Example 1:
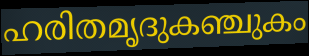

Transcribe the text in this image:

ഹരിതമൃദുകഞ്ചുകം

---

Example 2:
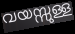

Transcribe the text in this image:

വയസ്സുള്ള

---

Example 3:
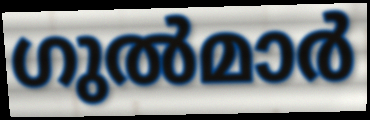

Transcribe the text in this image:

ഗുൽമാർ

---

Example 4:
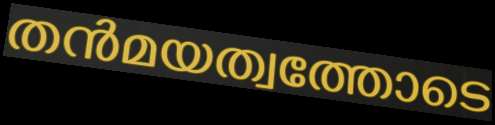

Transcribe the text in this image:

തൻമയത്വത്തോടെ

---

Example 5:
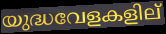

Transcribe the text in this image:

യുദ്ധവേളകളില്